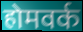
होमवर्क